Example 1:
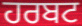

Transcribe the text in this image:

ਹਰਬਟ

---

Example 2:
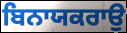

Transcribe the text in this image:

ਬਿਨਾਯਕਰਾਉ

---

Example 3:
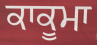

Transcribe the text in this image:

ਕਾਕੂਮਾ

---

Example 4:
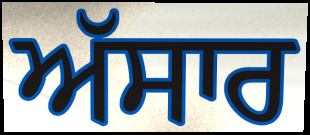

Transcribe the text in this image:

ਅੱਸਾਰ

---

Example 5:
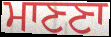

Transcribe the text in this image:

ਮਾਣਣਾ